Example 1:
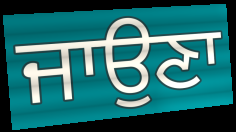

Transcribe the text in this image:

ਜਾਉਣਾ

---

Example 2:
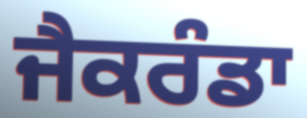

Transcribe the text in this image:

ਜੈਕਰੰਡਾ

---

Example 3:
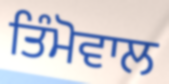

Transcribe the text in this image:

ਤਿੰਮੋਵਾਲ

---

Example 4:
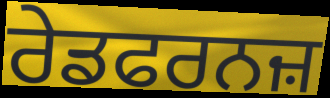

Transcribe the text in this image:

ਰੇਡਫਰਨਜ਼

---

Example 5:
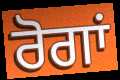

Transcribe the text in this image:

ਰੋਗਾਂ